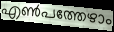
എൺപത്തേഴാം